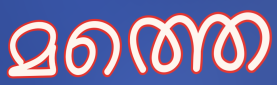
മത്തെ